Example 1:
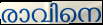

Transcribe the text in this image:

രാവിനെ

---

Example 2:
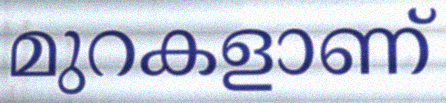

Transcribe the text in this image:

മുറകളാണ്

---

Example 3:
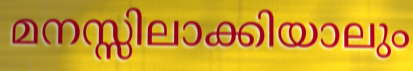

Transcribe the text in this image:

മനസ്സിലാക്കിയാലും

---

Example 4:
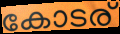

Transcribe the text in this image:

കോടര്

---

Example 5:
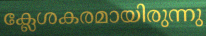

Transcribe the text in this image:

ക്ലേശകരമായിരുന്നു